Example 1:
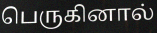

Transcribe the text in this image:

பெருகினால்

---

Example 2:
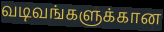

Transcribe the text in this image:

வடிவங்களுக்கான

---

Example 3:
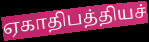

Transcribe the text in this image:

ஏகாதிபத்தியச்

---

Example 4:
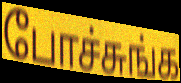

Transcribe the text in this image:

போச்சுங்க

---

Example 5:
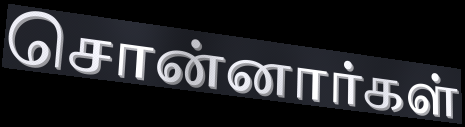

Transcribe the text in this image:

சொன்னார்கள்